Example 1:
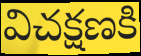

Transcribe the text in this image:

విచక్షణకి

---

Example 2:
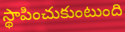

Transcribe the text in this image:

స్థాపించుకుంటుంది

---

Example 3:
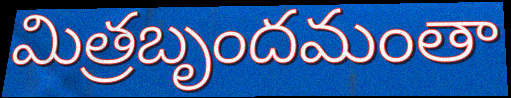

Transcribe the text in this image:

మిత్రబృందమంతా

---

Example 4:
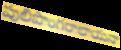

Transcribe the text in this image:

పులిపొంగరాలాయనా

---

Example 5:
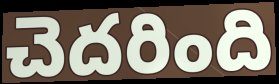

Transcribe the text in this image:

చెదరింది